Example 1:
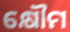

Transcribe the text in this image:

କ୍ଷୌମ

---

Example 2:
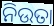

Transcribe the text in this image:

ନିଉତା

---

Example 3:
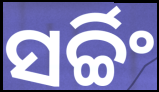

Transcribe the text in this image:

ସର୍ଚ୍ଚିଂ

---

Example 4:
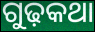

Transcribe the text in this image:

ଗୁଢ଼କଥା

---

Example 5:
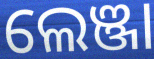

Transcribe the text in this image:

ଲେଞ୍ଜା